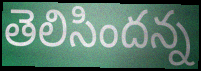
తెలిసిందన్న